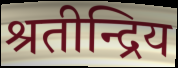
श्रतीन्द्रिय